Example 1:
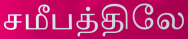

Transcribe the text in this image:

சமீபத்திலே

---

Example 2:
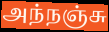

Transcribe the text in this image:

அந்நஞ்சு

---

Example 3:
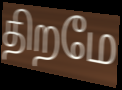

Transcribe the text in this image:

திறமே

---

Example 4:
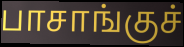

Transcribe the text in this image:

பாசாங்குச்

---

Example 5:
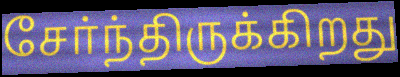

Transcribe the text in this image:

சேர்ந்திருக்கிறது